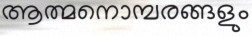
ആത്മനൊമ്പരങ്ങളും